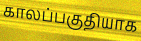
காலப்பகுதியாக